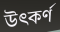
উৎকর্ণ